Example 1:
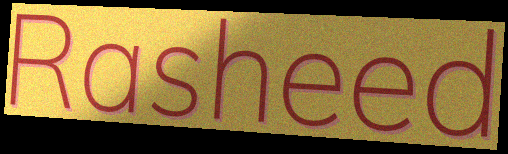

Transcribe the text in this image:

Rasheed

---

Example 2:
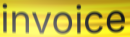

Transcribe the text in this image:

invoice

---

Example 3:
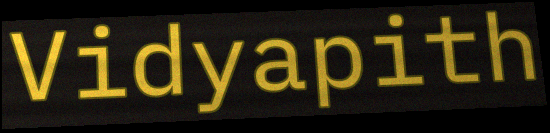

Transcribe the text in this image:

Vidyapith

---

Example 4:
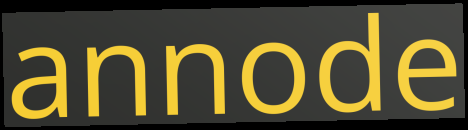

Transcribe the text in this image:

annode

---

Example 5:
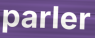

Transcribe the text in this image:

parler